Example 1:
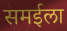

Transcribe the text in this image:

समईला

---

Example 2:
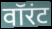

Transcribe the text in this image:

वॉरंट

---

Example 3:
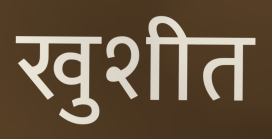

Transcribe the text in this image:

खुशीत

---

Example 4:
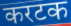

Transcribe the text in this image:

करटक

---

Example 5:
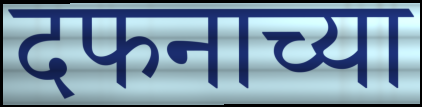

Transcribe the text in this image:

दफनाच्या